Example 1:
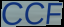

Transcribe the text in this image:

CCF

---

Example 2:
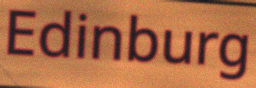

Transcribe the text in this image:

Edinburg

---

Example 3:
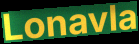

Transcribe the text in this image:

Lonavla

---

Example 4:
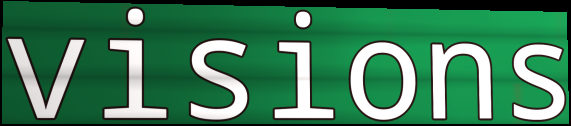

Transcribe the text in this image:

visions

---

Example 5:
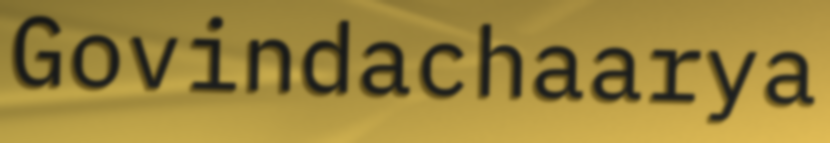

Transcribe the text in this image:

Govindachaarya